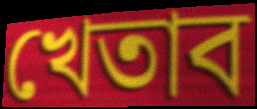
খেতাব